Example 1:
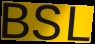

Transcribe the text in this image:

BSL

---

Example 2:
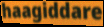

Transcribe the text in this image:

haagiddare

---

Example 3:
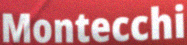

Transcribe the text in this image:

Montecchi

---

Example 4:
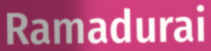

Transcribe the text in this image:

Ramadurai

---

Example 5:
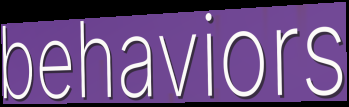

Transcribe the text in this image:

behaviors